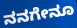
ನನಗೇನೂ